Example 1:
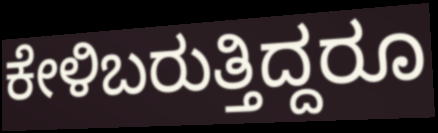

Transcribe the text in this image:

ಕೇಳಿಬರುತ್ತಿದ್ದರೂ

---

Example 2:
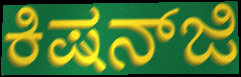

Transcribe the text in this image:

ಕಿಷನ್‌ಜಿ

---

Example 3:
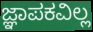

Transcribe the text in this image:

ಜ್ಞಾಪಕವಿಲ್ಲ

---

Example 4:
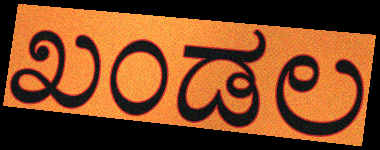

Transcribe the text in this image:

ಖಂಡಲ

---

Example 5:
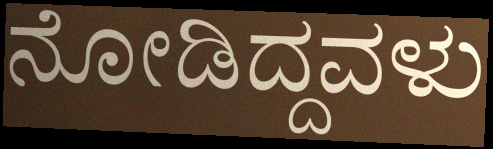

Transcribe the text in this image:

ನೋಡಿದ್ದವಳು